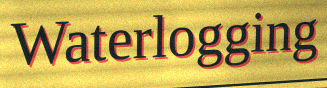
Waterlogging